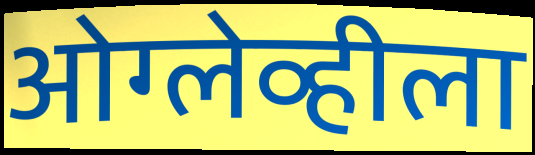
ओग्लेव्हीला